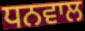
ਧਨਵਾਲ